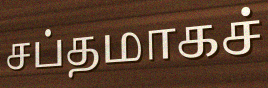
சப்தமாகச்